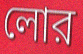
লোর